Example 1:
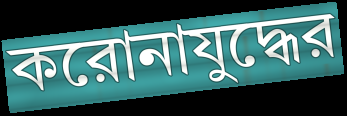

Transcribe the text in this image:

করোনাযুদ্ধের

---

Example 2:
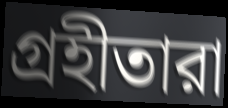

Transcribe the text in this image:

গ্রহীতারা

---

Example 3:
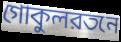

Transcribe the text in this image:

গোকুলরতনে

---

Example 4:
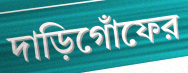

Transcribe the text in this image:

দাড়িগোঁফের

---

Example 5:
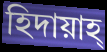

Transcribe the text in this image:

হিদায়াহ্